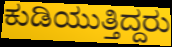
ಕುಡಿಯುತ್ತಿದ್ದರು